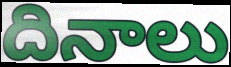
దినాలు